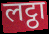
लट्ठा